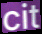
cit